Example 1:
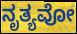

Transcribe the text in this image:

ನೃತ್ಯವೋ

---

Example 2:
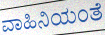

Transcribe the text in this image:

ವಾಹಿನಿಯಂತೆ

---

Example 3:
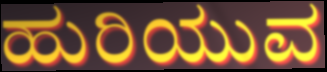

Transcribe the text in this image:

ಹುರಿಯುವ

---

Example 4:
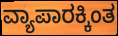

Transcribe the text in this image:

ವ್ಯಾಪಾರಕ್ಕಿಂತ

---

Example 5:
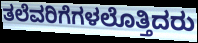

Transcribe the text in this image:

ತಲೆವರಿಗೆಗಳಲೊತ್ತಿದರು